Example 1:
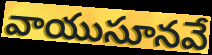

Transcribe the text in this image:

వాయుసూనవే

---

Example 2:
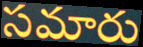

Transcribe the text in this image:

సమారు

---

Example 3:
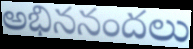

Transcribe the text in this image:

అభిననందలు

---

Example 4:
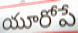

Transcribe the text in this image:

యూరోపే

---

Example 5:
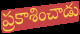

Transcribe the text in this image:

ప్రకాశించాడు